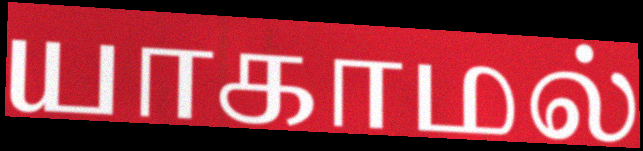
யாகாமல்